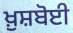
ਖ਼ੁਸ਼ਬੋਈ